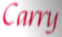
Carry